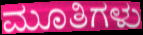
ಮೂತಿಗಳು